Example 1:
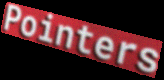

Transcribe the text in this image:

Pointers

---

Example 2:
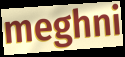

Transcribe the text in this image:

meghni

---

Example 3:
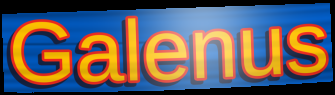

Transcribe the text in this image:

Galenus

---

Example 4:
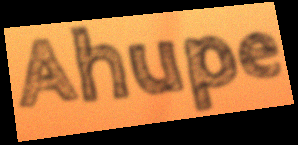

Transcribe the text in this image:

Ahupe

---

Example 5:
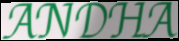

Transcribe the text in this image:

ANDHA